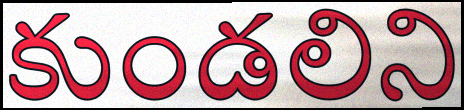
కుండలిని